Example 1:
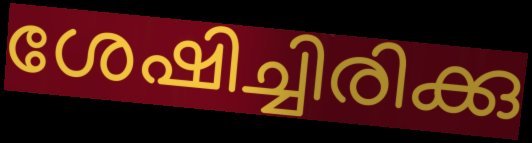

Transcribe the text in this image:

ശേഷിച്ചിരിക്കു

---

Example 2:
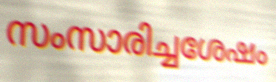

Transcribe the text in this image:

സംസാരിച്ചശേഷം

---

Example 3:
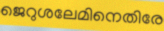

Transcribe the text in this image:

ജെറുശലേമിനെതിരേ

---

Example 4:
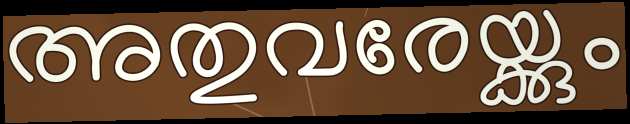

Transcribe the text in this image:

അതുവരേയ്ക്കും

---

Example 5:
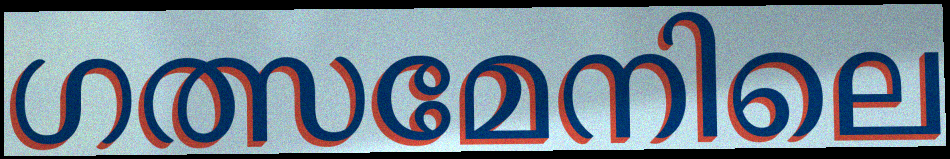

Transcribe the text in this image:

ഗത്സമേനിലെ